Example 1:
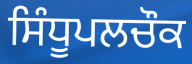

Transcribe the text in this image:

ਸਿੰਧੂਪਲਚੌਕ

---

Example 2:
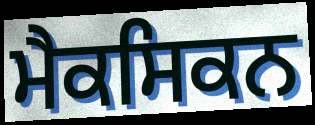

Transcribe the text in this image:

ਮੈਕਸਿਕਨ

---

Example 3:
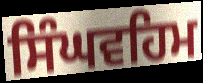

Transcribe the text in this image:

ਸਿੰਘਵਹਿਮ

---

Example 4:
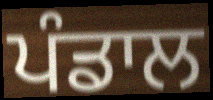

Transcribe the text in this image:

ਪੰਡਾਲ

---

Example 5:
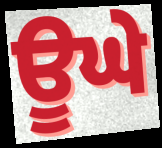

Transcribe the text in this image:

ਊਘੇ